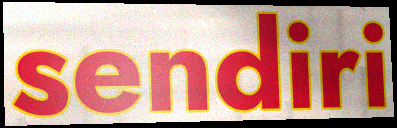
sendiri